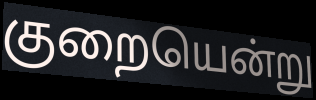
குறையென்று